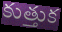
కుత్తుక